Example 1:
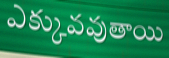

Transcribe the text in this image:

ఎక్కువవుతాయి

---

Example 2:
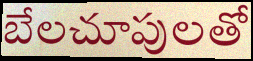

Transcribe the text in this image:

బేలచూపులతో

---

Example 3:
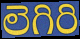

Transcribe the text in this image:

లెగిరి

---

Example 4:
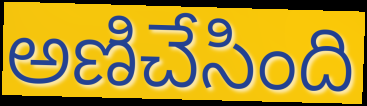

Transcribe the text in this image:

అణిచేసింది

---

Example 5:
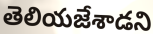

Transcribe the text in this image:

తెలియజేశాడని